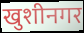
खुशीनगर